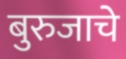
बुरुजाचे